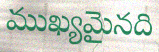
ముఖ్యమైనది